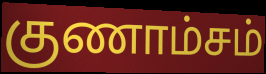
குணாம்சம்